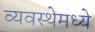
व्यवस्थेमध्ये